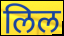
लिल